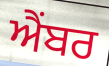
ਐਂਬਰ